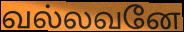
வல்லவனே